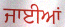
ਜਾਈਆਂ